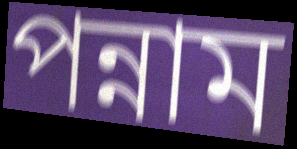
পন্নাম